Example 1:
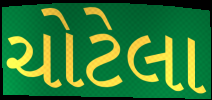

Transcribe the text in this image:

ચોટેલા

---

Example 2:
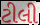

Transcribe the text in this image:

ટીલી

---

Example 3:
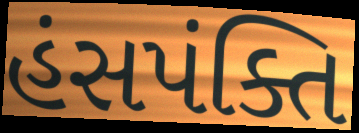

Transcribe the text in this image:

હંસપંક્તિ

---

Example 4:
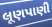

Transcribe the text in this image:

લૂણપાણી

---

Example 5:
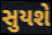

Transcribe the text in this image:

સુયશે